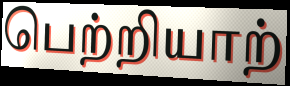
பெற்றியாற்